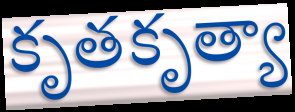
కృతకృత్యా